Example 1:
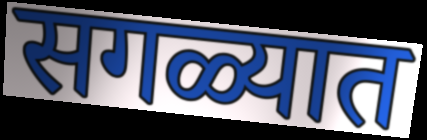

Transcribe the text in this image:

सगळ्यात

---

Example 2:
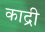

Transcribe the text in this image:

काद्री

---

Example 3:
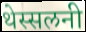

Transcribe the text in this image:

थेस्सलनी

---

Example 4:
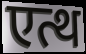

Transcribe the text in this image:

एत्थ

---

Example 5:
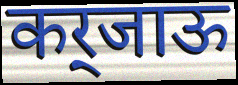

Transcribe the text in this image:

कर्जाऊ